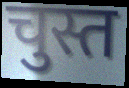
चुस्त